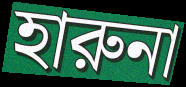
হারুনা